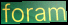
foram